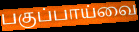
பகுப்பாய்வை